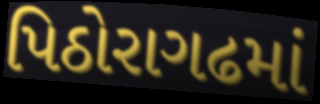
પિઠોરાગઢમાં